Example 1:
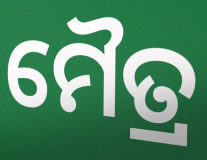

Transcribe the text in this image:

ମୈତ୍ର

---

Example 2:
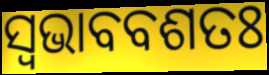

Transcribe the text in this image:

ସ୍ୱଭାବବଶତଃ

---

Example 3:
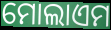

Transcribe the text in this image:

ମୋଲାଏମ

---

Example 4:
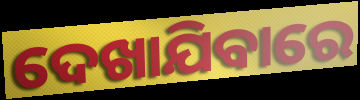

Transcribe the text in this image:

ଦେଖାଯିବାରେ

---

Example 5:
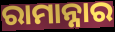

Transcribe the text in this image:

ରାମାନ୍ନାର